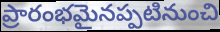
ప్రారంభమైనప్పటినుంచి